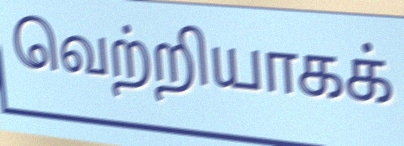
வெற்றியாகக்